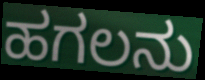
ಹಗಲನು